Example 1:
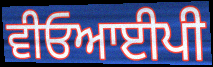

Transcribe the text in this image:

ਵੀਓਆਈਪੀ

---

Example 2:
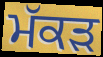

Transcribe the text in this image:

ਮੱਕੜ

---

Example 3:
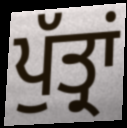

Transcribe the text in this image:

ਪੁੱਤ੍ਰਾਂ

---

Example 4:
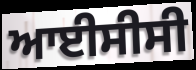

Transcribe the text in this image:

ਆਈਸੀਸੀ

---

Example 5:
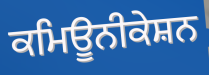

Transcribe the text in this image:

ਕਮਿਊਨੀਕੇਸ਼ਨ